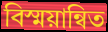
বিস্ময়ান্বিত